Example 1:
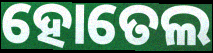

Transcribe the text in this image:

ହୋତେଲ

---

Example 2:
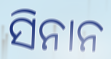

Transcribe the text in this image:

ସିନାନ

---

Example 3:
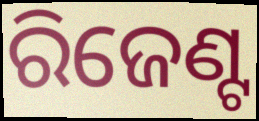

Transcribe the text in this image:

ରିଜେଣ୍ଟ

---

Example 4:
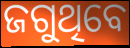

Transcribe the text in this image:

ଜଗୁଥିବେ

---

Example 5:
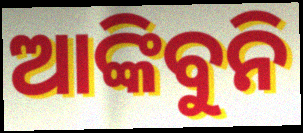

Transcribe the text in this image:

ଆଙ୍କିବୁନି